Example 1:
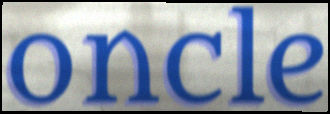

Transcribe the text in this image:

oncle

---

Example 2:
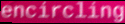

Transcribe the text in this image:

encircling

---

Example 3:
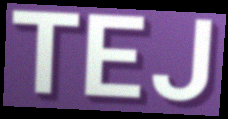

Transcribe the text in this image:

TEJ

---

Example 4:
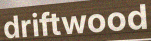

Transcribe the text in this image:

driftwood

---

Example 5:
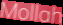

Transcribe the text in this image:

Mollah